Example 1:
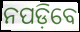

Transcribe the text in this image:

ନପଡ଼ିବେ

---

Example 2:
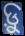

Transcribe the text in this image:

ଡ଼ୁ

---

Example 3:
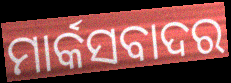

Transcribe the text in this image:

ମାର୍କସବାଦର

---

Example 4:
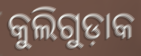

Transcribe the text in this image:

କୁଲିଗୁଡ଼ାକ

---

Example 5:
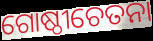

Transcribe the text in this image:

ଗୋଷ୍ଠୀଚେତନା